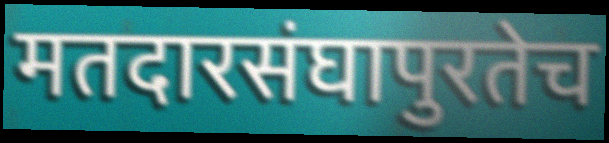
मतदारसंघापुरतेच